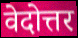
वेदोत्तर